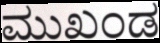
ಮುಖಂಡ